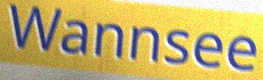
Wannsee